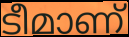
ടീമാണ്